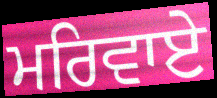
ਮਰਿਵਾਏ